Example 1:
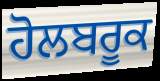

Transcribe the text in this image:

ਹੋਲਬਰੂਕ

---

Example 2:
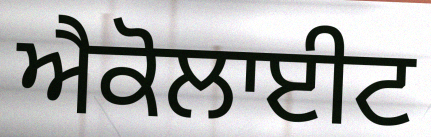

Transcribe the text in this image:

ਐਕੋਲਾਈਟ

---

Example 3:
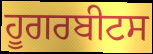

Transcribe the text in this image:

ਹੂਗਰਬੀਟਸ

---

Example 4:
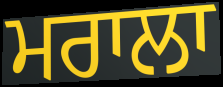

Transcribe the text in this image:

ਮਰਾਲਾ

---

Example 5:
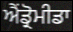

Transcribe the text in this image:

ਐਂਡ੍ਰੋਮੀਡਾ